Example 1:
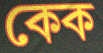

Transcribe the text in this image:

কেক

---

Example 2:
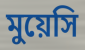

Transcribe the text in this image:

মুয়েসি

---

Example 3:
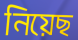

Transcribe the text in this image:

নিয়েছ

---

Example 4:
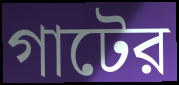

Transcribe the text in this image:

গাটের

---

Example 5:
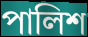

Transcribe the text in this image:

পালিশ